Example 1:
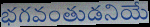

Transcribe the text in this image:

భగవంతుడనియే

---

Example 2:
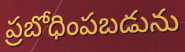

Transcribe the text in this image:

ప్రబోధింపబడును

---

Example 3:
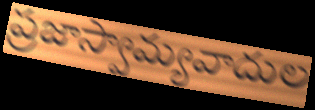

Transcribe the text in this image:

ప్రజాస్వామ్యవాదుల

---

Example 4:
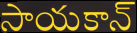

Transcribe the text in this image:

సాయకాన్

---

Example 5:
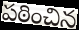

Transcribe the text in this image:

పఠించిన